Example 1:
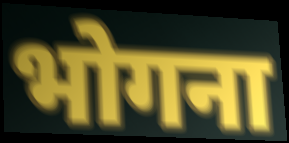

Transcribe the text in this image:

भोगना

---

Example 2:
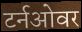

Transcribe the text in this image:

टर्नओवर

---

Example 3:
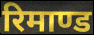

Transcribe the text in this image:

रिमाण्ड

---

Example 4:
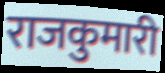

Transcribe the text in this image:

राजकुमारी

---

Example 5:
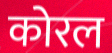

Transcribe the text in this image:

कोरल